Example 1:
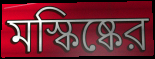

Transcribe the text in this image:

মস্কিষ্কের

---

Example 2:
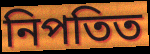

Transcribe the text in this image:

নিপতিত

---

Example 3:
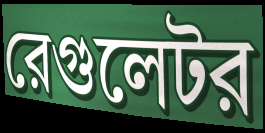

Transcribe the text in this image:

রেগুলেটর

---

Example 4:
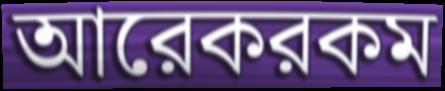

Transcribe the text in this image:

আরেকরকম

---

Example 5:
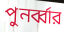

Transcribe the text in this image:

পুনর্ব্বার